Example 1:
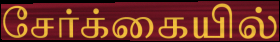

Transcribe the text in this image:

சேர்க்கையில்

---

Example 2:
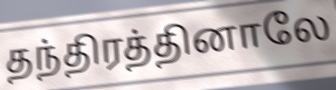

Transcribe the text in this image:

தந்திரத்தினாலே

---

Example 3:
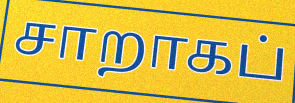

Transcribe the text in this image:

சாறாகப்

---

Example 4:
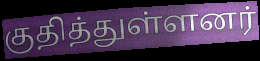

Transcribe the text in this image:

குதித்துள்ளனர்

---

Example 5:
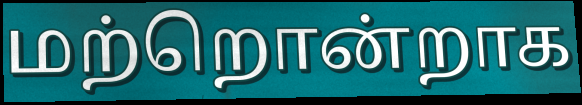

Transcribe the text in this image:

மற்றொன்றாக